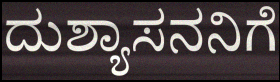
ದುಶ್ಯಾಸನನಿಗೆ